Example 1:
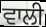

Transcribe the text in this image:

ਵਾਲੀ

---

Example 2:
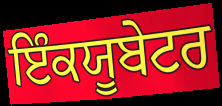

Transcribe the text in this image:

ਇੰਕਯੂਬੇਟਰ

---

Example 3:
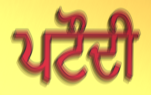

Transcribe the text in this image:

ਪਟੌਦੀ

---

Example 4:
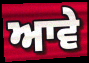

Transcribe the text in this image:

ਆਵੇ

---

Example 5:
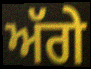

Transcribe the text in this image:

ਅੱਗੇ